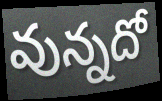
వున్నదో